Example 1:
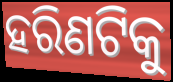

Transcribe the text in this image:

ହରିଣଟିକୁ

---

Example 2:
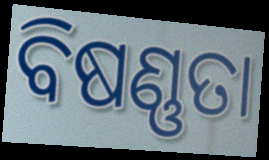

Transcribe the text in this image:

ବିଷଣ୍ଣତା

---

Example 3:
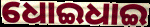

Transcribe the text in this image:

ଧୋଇଧାଇ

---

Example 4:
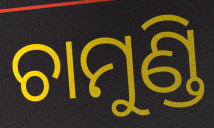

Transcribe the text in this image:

ଚାମୁଣ୍ଡି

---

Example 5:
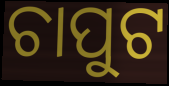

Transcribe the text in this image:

ଚାପୁଟ